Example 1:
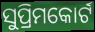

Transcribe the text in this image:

ସୁପ୍ରିମକୋର୍ଟ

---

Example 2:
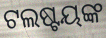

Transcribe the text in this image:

ଟଲଷ୍ଟୟଙ୍କ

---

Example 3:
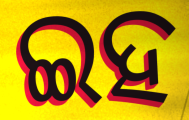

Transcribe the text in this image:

ଇହ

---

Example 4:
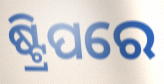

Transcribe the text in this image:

ଷ୍ଟ୍ରିପରେ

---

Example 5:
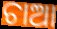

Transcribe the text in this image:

ଚାଆ